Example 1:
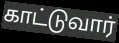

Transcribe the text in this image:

காட்டுவார்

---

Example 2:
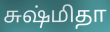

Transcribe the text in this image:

சுஷ்மிதா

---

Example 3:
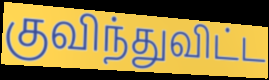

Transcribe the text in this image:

குவிந்துவிட்ட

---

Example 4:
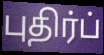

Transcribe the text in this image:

புதிர்ப்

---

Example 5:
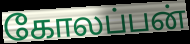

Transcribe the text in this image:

கோலப்பன்